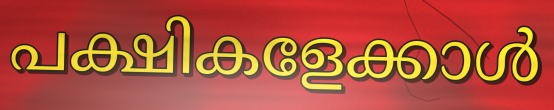
പക്ഷികളേക്കാൾ